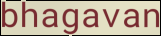
bhagavan